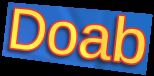
Doab